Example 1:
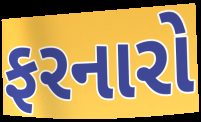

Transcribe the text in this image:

ફરનારો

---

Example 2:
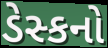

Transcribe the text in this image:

ડેસ્કનો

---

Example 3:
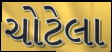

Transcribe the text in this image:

ચોટેલા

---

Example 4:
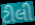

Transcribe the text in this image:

ટીલી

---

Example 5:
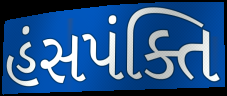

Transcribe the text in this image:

હંસપંક્તિ